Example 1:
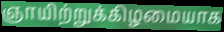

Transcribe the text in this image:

ஞாயிற்றுக்கிழமையாக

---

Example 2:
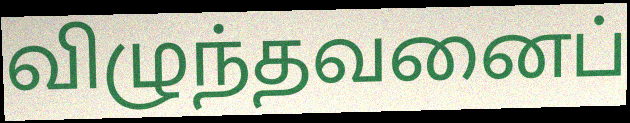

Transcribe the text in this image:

விழுந்தவனைப்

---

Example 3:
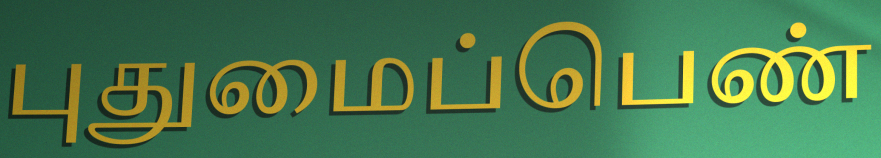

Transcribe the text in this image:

புதுமைப்பெண்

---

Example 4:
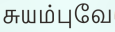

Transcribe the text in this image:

சுயம்புவே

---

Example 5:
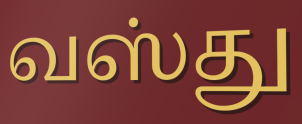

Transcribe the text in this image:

வஸ்து